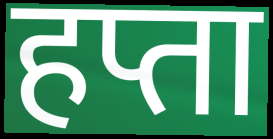
हप्ता